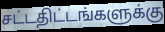
சட்டதிட்டங்களுக்கு